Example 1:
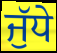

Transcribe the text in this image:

ਜੁੱਧੇ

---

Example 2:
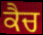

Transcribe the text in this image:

ਕੈਚ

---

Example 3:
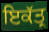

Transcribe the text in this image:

ਇਕੱਤ੍ਰ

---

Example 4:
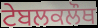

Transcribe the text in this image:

ਟੇਬਲਕਲੌਥ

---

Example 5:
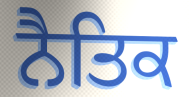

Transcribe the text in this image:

ਨੈਤਿਕ